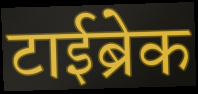
टाईब्रेक